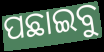
ପଛାଇବୁ